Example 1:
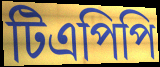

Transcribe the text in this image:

টিএপিপি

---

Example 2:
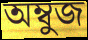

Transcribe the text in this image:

অম্বুজ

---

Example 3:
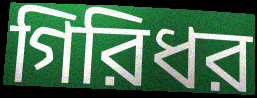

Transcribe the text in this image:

গিরিধর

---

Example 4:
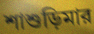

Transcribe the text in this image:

শাশুড়িমার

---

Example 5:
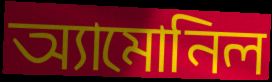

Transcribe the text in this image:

অ্যামোনিল